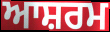
ਆਸ਼ਰਮ